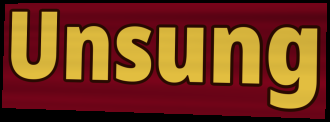
Unsung